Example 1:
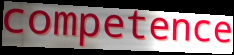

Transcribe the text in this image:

competence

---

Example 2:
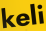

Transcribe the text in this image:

keli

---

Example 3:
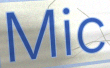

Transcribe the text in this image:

Mic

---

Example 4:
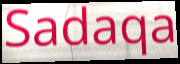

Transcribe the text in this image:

Sadaqa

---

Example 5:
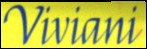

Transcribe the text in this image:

Viviani